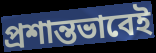
প্রশান্তভাবেই